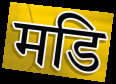
मडि